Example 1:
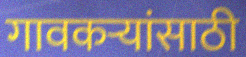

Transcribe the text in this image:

गावकऱ्यांसाठी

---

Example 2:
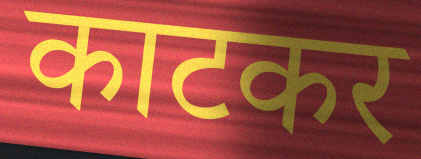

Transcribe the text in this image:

काटकर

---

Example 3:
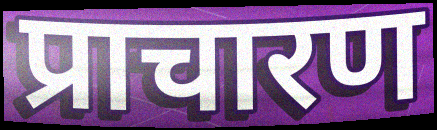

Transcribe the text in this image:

प्राचारण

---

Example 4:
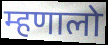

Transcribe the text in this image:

म्हणालो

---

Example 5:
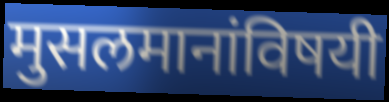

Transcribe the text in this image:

मुसलमानांविषयी